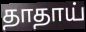
தாதாய்